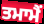
ਤਮਾਮੈਂ